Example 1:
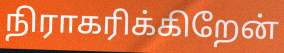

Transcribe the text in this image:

நிராகரிக்கிறேன்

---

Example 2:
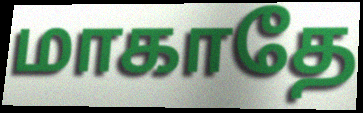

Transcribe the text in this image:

மாகாதே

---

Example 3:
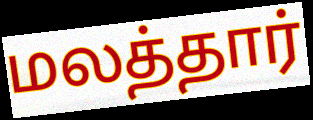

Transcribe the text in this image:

மலத்தார்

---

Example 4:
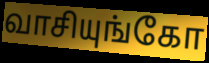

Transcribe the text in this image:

வாசியுங்கோ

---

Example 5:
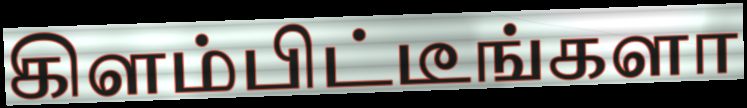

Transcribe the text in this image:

கிளம்பிட்டீங்களா